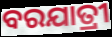
ବରଯାତ୍ରୀ